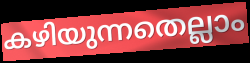
കഴിയുന്നതെല്ലാം